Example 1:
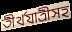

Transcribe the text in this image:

তীর্থযাত্রীসহ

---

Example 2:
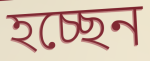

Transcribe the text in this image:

হচ্ছেন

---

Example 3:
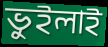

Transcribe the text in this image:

ভুইলাই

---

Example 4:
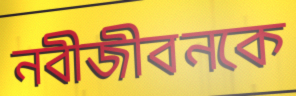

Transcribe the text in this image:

নবীজীবনকে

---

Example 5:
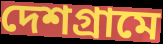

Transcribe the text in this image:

দেশগ্রামে